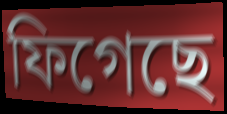
ফিগেছে